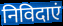
निविदाएं